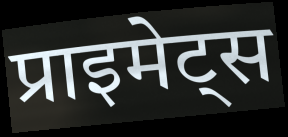
प्राइमेट्स